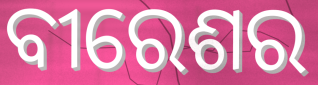
ବୀରେଶର